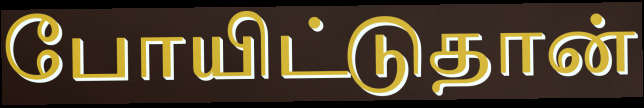
போயிட்டுதான்